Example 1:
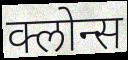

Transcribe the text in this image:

क्लोन्स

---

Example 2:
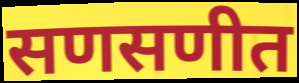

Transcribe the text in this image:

सणसणीत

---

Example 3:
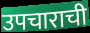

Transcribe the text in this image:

उपचाराची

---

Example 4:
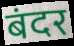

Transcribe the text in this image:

बंदर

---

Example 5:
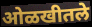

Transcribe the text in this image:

ओळखीतले